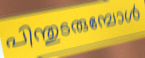
പിന്തുടരുമ്പോൾ